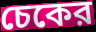
চেকের